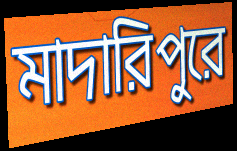
মাদারিপুরে